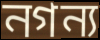
নগন্য